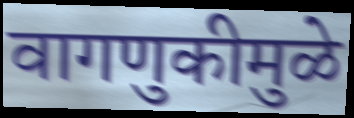
वागणुकीमुळे